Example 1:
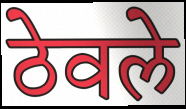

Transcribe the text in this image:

ठेवले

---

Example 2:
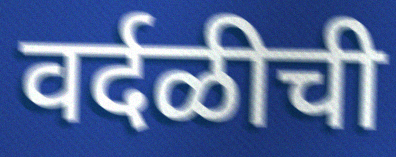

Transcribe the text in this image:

वर्दळीची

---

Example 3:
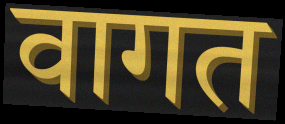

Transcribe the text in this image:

वागत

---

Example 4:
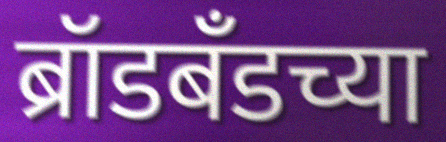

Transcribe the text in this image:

ब्रॉडबँडच्या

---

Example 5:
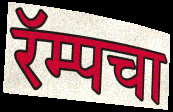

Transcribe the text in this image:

रॅम्पचा